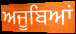
ਅਜੂਬਿਆਂ